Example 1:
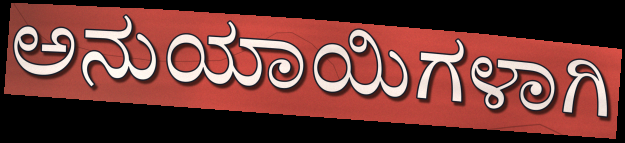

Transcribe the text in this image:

ಅನುಯಾಯಿಗಳಾಗಿ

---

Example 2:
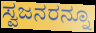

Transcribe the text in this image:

ಸ್ವಜನರನ್ನೂ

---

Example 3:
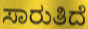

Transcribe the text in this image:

ಸಾರುತಿದೆ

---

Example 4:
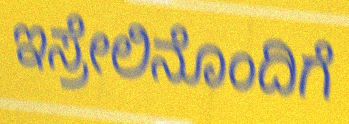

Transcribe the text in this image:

ಇಸ್ರೇಲಿನೊಂದಿಗೆ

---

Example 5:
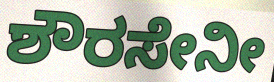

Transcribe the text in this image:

ಶೌರಸೇನೀ